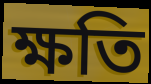
ক্ষতি